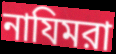
নাযিমরা